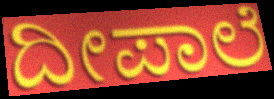
ದೀಪಾಲೆ